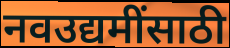
नवउद्यमींसाठी